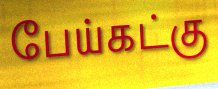
பேய்கட்கு